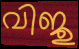
വിജു